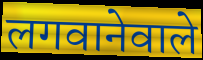
लगवानेवाले